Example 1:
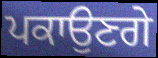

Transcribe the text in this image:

ਪਕਾਉਣਗੇ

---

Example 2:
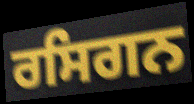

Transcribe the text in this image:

ਰਸਿਗਨ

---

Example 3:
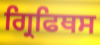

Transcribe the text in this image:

ਗ੍ਰਿਫਿਥਸ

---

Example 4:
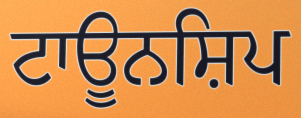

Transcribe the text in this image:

ਟਾਊਨਸ਼ਿਪ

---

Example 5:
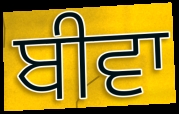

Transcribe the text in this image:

ਬੀਵਾ